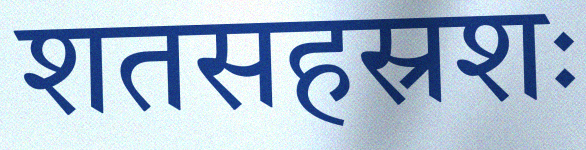
शतसहस्रशः